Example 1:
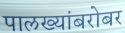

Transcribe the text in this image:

पालख्यांबरोबर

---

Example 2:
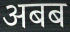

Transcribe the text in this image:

अबब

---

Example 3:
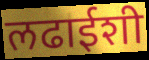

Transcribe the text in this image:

लढाईशी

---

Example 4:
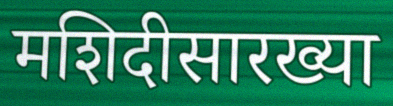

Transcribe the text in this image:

मशिदीसारख्या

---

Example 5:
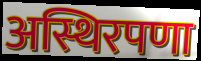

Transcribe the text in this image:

अस्थिरपणा